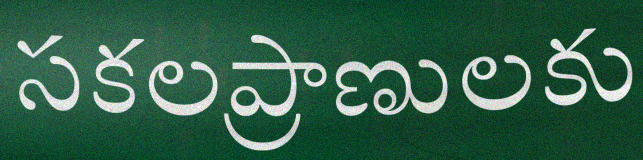
సకలప్రాణులకు